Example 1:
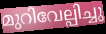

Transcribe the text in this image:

മുറിവേല്പിച്ചു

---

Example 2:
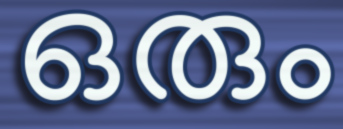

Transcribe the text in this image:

ഒരും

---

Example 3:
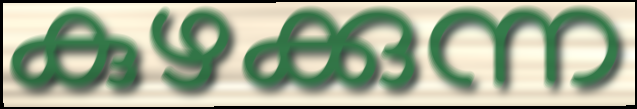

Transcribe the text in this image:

കുഴക്കുന്ന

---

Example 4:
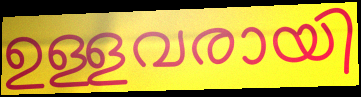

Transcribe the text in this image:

ഉള്ളവരായി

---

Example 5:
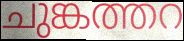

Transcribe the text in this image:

ചുങ്കത്തറ